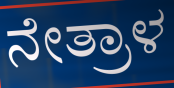
ನೇತ್ರಾಳ